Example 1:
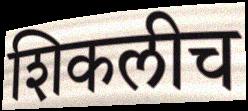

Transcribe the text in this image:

शिकलीच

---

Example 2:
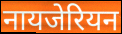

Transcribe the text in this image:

नायजेरियन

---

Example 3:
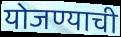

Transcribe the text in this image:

योजण्याची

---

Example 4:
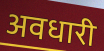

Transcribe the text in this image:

अवधारी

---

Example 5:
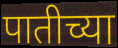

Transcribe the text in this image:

पातीच्या